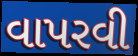
વાપરવી